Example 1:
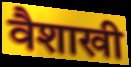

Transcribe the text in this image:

वैशाखी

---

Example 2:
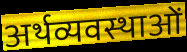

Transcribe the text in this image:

अर्थव्यवस्थाओं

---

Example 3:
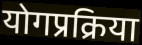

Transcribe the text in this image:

योगप्रक्रिया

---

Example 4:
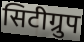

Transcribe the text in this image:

सिटीग्रुप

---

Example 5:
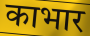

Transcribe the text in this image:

काभार